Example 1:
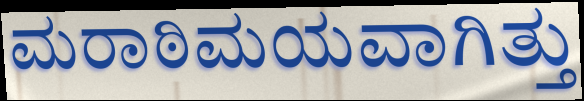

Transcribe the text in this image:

ಮರಾಠಿಮಯವಾಗಿತ್ತು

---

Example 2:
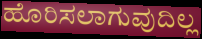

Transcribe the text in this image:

ಹೊರಿಸಲಾಗುವುದಿಲ್ಲ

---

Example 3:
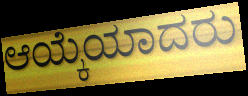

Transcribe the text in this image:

ಆಯ್ಕೆಯಾದರು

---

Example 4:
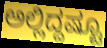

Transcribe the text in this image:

ಅಲ್ಲಿದ್ದಷ್ಟೂ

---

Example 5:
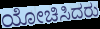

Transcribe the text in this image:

ಯೋಚಿಸಿದರು